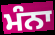
ਮੰਨਾ